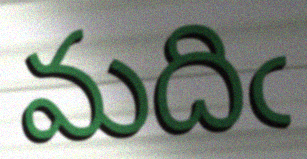
మదిఁ